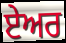
ਏਅਰ